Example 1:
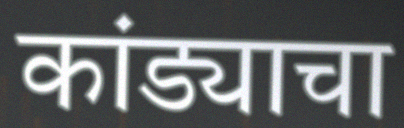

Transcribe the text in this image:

कांड्याचा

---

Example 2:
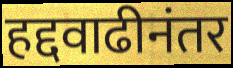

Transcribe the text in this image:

हद्दवाढीनंतर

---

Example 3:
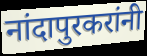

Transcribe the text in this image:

नांदापुरकरांनी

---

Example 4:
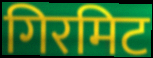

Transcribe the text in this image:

गिरमिट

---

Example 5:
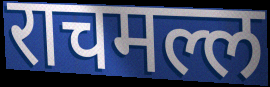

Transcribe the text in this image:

राचमल्ल